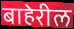
बाहेरील